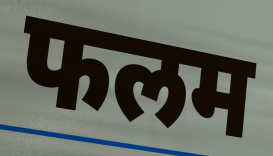
फलम